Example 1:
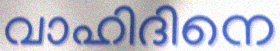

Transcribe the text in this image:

വാഹിദിനെ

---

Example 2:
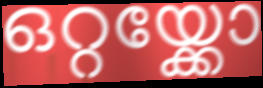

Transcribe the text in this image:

ഒറ്റയ്ക്കോ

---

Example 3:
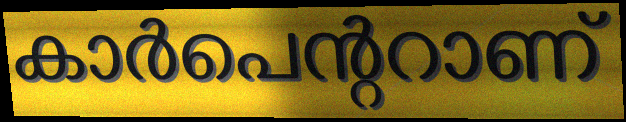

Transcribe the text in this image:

കാർപെന്ററാണ്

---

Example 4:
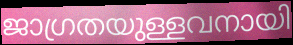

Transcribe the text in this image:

ജാഗ്രതയുള്ളവനായി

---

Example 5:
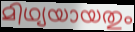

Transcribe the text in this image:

മിഥ്യയായതും